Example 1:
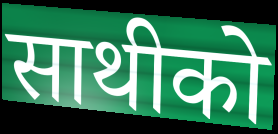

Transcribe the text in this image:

साथीको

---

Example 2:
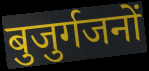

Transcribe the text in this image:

बुजुर्गजनों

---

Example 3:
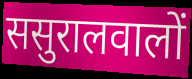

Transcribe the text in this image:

ससुरालवालों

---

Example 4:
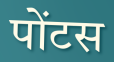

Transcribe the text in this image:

पोंटस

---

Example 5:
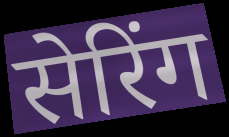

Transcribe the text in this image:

सेरिंग